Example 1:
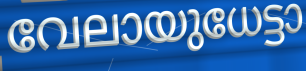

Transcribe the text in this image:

വേലായുധേട്ടാ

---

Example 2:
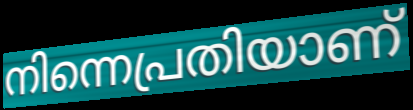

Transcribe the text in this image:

നിന്നെപ്രതിയാണ്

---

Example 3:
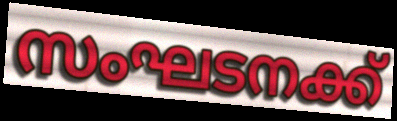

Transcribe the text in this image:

സംഘടനക്ക്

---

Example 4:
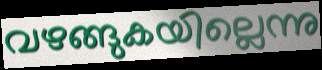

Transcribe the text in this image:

വഴങ്ങുകയില്ലെന്നു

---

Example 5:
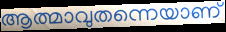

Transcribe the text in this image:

ആത്മാവുതന്നെയാണ്